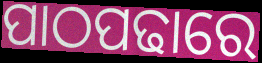
ପାଠପଢାରେ